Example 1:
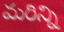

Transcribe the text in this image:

మరిన్ని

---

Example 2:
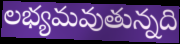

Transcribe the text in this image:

లభ్యమవుతున్నది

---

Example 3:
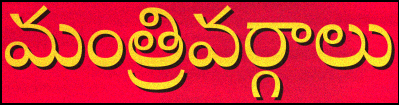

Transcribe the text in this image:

మంత్రివర్గాలు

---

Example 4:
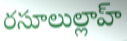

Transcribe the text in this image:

రసూలుల్లాహ్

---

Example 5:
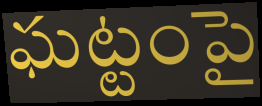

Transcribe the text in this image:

ఘట్టంపై